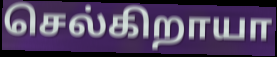
செல்கிறாயா